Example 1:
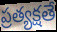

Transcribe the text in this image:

ప్రత్యక్షతే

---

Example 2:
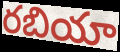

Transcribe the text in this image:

రబియా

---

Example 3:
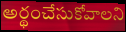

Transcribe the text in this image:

అర్థంచేసుకోవాలని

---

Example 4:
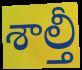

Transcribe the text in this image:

శాల్తీ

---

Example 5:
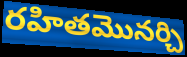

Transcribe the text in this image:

రహితమొనర్చి